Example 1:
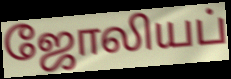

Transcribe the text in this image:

ஜோலியப்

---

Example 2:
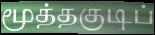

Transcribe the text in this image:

மூத்தகுடிப்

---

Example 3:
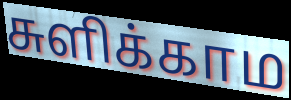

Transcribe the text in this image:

சுளிக்காம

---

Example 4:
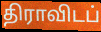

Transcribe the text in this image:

திராவிடப்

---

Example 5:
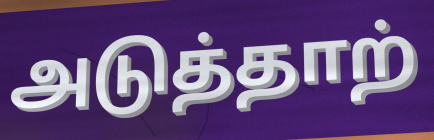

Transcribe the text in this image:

அடுத்தாற்